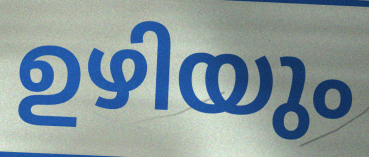
ഉഴിയും